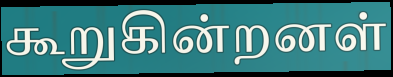
கூறுகின்றனள்